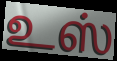
உஸ்